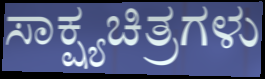
ಸಾಕ್ಷ್ಯಚಿತ್ರಗಳು